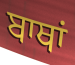
ਬਾਥਾਂ